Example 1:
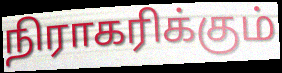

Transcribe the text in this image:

நிராகரிக்கும்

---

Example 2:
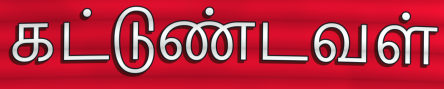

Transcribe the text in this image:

கட்டுண்டவள்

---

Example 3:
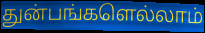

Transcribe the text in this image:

துன்பங்களெல்லாம்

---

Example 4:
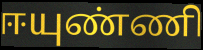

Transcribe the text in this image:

ஈயுண்ணி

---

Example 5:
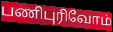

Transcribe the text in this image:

பணிபுரிவோம்